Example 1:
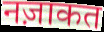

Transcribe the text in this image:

नज़ाकत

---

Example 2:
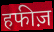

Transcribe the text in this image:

हफीज़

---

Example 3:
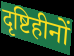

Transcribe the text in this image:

दृष्टिहीनों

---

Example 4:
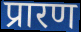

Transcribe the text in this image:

प्रारण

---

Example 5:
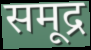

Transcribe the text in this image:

समूद्र